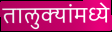
तालुक्यांमध्ये